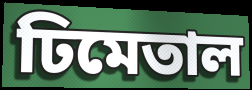
ঢিমেতাল